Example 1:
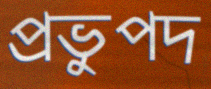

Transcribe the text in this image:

প্রভুপদ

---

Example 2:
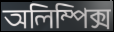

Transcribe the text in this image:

অলিম্পিক্স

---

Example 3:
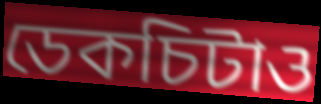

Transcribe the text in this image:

ডেকচিটাও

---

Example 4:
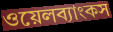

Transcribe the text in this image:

ওয়েলব্যাংকস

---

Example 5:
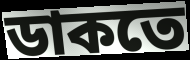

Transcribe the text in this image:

ডাকতে